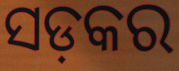
ସଡ଼କର